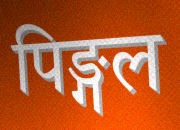
पिङ्गल